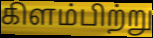
கிளம்பிற்று